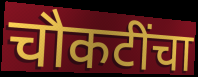
चौकटींचा